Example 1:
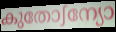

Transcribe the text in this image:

കുതോഽന്യോ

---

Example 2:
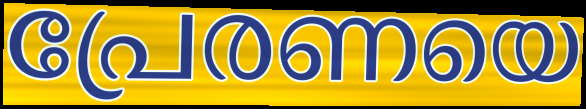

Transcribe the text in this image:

പ്രേരണയെ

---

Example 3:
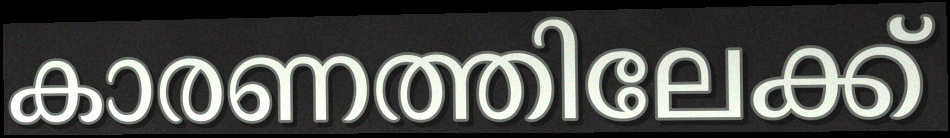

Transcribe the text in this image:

കാരണത്തിലേക്ക്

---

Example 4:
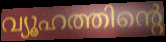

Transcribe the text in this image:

വ്യൂഹത്തിന്റെ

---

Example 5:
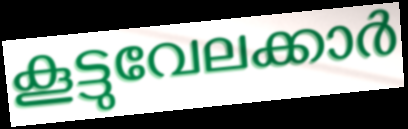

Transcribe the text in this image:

കൂട്ടുവേലക്കാർ